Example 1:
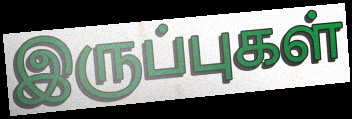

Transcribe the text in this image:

இருப்புகள்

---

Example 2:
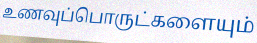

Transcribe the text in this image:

உணவுப்பொருட்களையும்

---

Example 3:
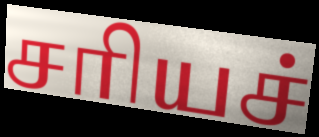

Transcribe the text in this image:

சரியச்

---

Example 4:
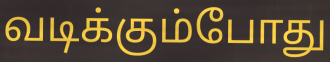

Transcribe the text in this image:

வடிக்கும்போது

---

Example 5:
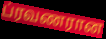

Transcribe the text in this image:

ப்ரவணரான